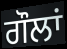
ਗੌਲਾਂ